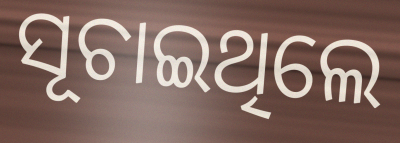
ସୂଚାଇଥିଲେ